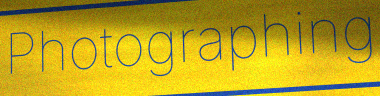
Photographing